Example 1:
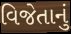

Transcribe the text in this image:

વિજેતાનું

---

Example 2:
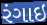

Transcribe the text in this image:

રંગાઇ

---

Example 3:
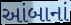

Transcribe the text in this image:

આંબાનાં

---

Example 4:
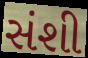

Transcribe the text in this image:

સંશી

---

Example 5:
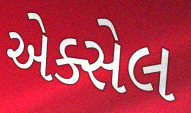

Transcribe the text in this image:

એક્સેલ